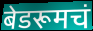
बेडरूमचं